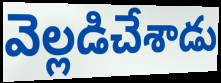
వెల్లడిచేశాడు